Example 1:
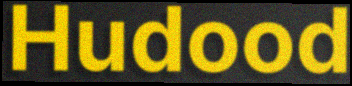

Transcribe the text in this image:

Hudood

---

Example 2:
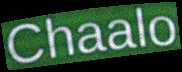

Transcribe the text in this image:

Chaalo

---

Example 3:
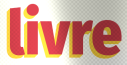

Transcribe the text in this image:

livre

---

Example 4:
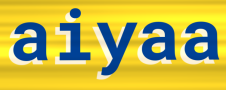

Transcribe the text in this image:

aiyaa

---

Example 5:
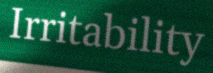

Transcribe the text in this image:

Irritability